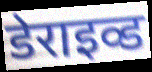
डेराइव्ड